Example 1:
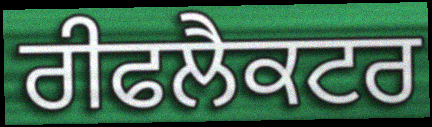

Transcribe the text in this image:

ਰੀਫਲੈਕਟਰ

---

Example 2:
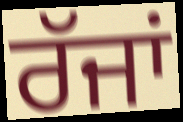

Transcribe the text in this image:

ਰੱਜਾਂ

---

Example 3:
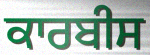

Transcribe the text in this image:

ਕਾਰਬੀਸ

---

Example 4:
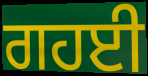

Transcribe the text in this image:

ਗਹਈ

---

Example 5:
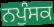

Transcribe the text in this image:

ਨਪੁੰਸਕ